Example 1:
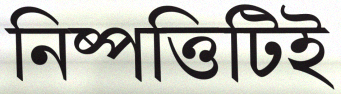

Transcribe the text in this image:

নিষ্পত্তিটিই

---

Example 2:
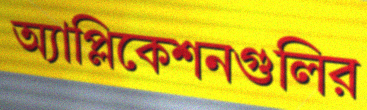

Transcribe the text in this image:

অ্যাপ্লিকেশনগুলির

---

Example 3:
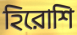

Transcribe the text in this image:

হিরোশি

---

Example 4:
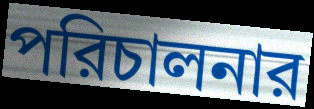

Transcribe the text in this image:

পরিচালনার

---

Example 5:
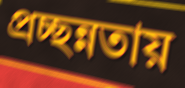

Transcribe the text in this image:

প্রচ্ছন্নতায়